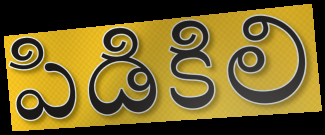
పిడికిలి